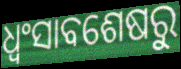
ଧ୍ୱଂସାବଶେଷରୁ